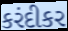
કરંદીકર